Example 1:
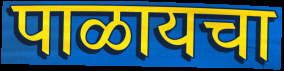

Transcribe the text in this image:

पाळायचा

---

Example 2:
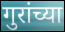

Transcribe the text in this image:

गुरांच्या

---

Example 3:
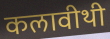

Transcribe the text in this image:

कलावीथी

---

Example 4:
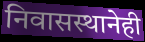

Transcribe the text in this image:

निवासस्थानेही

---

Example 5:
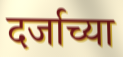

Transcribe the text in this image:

दर्जाच्या